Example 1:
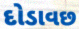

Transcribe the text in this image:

દોડાવછ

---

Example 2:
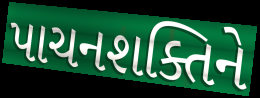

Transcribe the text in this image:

પાચનશક્તિને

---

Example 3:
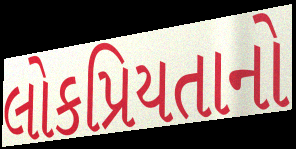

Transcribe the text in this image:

લોકપ્રિયતાનો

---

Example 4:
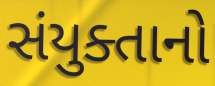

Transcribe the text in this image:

સંયુક્તાનો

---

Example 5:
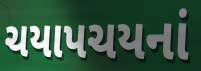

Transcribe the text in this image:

ચયાપચયનાં